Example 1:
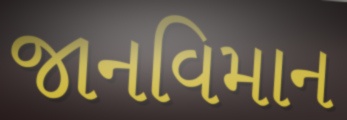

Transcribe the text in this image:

જાનવિમાન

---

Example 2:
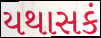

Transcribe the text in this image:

યથાસકં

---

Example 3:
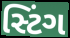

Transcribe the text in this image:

સ્ટિંગ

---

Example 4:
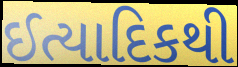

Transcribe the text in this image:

ઈત્યાદિકથી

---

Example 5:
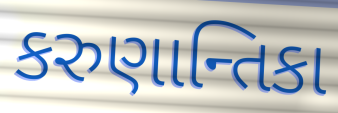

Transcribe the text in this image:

કરુણાન્તિકા